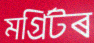
মৰ্গ্ৰিটৰ